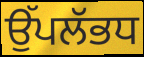
ਉੱਪਲੱਭਧ